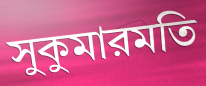
সুকুমারমতি